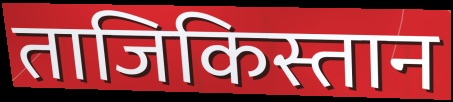
ताजिकिस्तान